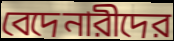
বেদেনারীদের